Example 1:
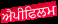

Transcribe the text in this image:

ਐਪੀਫਿਲਮ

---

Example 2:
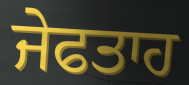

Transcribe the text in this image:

ਜੇਫਤਾਹ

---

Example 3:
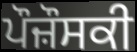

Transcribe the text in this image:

ਪੌਜ਼ੌਸਕੀ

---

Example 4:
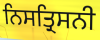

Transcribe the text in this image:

ਨਿਸਤ੍ਰਿਸਨੀ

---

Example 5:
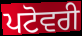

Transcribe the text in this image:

ਪਟੋਵਰੀ